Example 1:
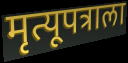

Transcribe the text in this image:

मृत्यूपत्राला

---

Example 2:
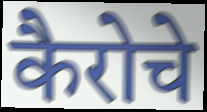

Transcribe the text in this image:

कैरोचे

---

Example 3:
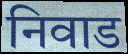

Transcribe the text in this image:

निवाड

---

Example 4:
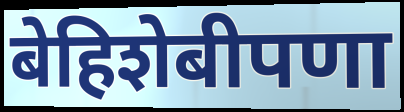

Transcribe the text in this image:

बेहिशेबीपणा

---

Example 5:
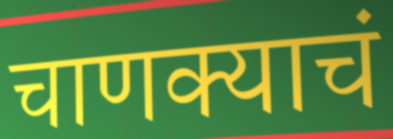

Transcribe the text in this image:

चाणक्याचं